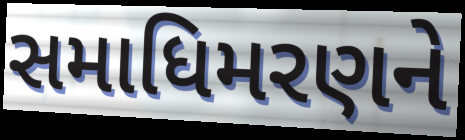
સમાધિમરણને